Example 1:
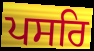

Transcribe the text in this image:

ਪਸਰਿ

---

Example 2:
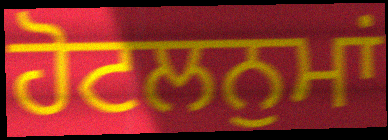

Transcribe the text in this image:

ਹੋਟਲਨੁਮਾਂ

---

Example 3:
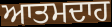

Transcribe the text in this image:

ਆਤਮਦਾਹ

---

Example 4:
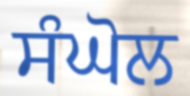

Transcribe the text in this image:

ਸੰਘੋਲ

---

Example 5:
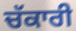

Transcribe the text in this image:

ਚੱਕਾਰੀ